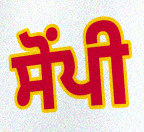
ਸੋੰਪੀ